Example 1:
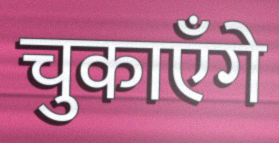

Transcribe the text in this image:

चुकाएँगे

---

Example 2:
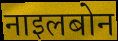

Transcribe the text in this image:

नाइलबोन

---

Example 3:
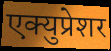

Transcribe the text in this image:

एक्युप्रेशर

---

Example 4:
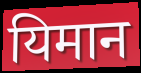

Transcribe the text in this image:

यिमान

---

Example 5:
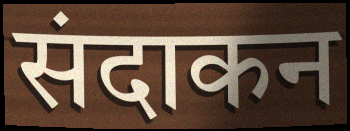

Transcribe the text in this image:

संदाकन